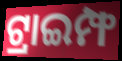
ଟ୍ରାଇମ୍ଫ